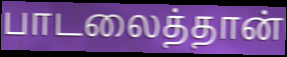
பாடலைத்தான்